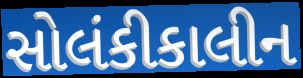
સોલંકીકાલીન